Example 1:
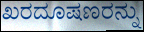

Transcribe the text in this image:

ಖರದೂಷಣರನ್ನು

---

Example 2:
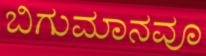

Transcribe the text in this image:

ಬಿಗುಮಾನವೂ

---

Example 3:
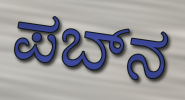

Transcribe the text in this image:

ಪಬ್‌ನ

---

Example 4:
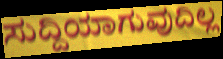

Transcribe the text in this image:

ಸುದ್ದಿಯಾಗುವುದಿಲ್ಲ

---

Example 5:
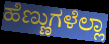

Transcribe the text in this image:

ಹೆಣ್ಣುಗಳೆಲ್ಲಾ